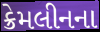
ક્રેમલીનના